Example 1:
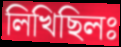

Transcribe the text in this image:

লিখিছিলঃ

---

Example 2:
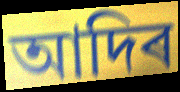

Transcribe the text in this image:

আদিৰ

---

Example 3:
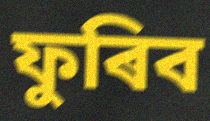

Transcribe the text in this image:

ফুৰিব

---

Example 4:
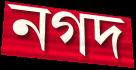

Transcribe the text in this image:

নগদ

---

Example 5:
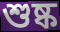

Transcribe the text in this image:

শুষ্ক